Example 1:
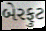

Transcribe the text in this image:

બેરફુટ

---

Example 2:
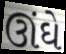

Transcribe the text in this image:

ઊંઘે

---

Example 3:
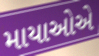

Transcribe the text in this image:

માયાઓએ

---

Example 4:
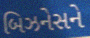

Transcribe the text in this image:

બિઝનેસને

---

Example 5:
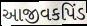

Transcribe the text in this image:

આજીવકપિંડ